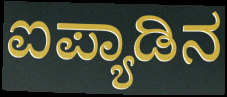
ಐಪ್ಯಾಡಿನ